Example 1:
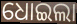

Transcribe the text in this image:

ଧୋଇଲା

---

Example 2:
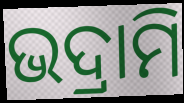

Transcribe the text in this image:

ଭଦ୍ରାମି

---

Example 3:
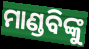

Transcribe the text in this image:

ମାଣ୍ଡବିଙ୍କୁ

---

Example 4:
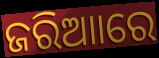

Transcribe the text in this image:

ଜରିଆାରେ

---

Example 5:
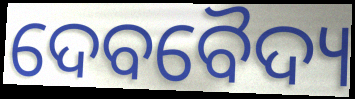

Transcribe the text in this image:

ଦେବବୈଦ୍ୟ